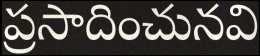
ప్రసాదించునవి